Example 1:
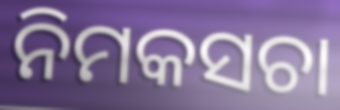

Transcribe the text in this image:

ନିମକସଚା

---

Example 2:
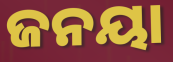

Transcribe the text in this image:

ଜନୟା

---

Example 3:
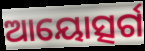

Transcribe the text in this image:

ଆୟୋତ୍ସର୍ଗ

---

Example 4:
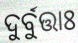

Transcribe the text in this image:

ଦୁର୍ବୁତ୍ତାଃ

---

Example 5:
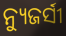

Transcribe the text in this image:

ନ୍ୟୁଜର୍ସୀ